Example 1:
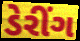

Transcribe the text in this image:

ડેરીંગ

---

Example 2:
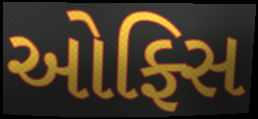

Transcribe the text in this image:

ઓફ્સિ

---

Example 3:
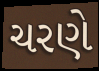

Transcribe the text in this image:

ચરણે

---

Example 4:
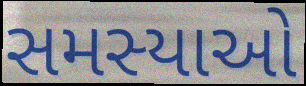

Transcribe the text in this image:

સમસ્યાઓ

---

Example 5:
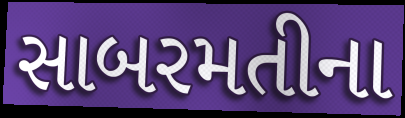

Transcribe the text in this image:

સાબરમતીના